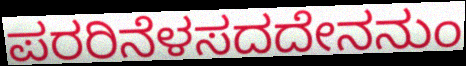
ಪರರಿನೆಳಸದದೇನನುಂ